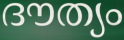
ദൗത്യം